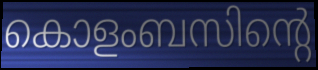
കൊളംബസിന്റെ